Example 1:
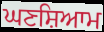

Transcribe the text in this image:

ਘਣਸ਼ਿਆਮ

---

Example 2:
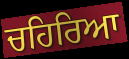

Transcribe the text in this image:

ਚਹਿਰਿਆ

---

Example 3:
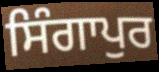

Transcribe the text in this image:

ਸਿੰਗਾਪੁਰ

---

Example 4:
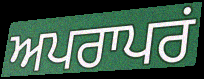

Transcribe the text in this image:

ਅਪਰਾਪਰਂ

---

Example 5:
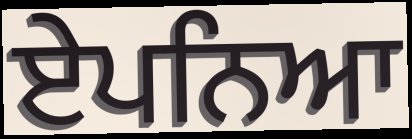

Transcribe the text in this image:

ਏਪਨਿਆ